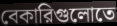
বেকারিগুলোতে